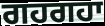
ਗਹਗਹਾ